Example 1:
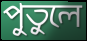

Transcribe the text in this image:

পুতুলে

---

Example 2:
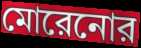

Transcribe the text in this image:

মোরেনোর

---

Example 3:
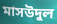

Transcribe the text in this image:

মাসউদুল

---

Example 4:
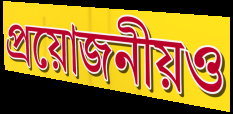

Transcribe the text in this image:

প্রয়োজনীয়ও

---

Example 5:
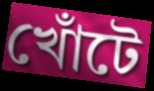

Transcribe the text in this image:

খোঁটে